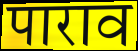
पाराव